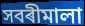
সবৰীমালা